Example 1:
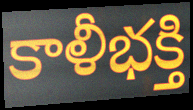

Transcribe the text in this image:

కాళీభక్తి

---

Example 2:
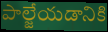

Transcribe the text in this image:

పాల్జేయడానికి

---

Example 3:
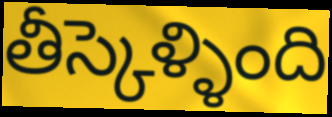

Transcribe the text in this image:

తీస్కెళ్ళింది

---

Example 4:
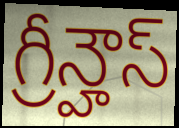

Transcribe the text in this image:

గ్రీన్హౌస్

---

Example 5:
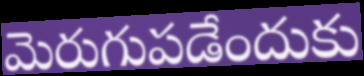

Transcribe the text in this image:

మెరుగుపడేందుకు